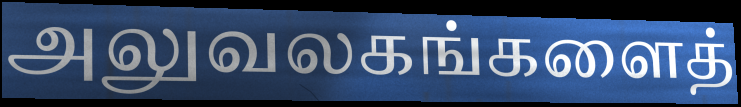
அலுவலகங்களைத்